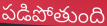
పడిపోతుంది